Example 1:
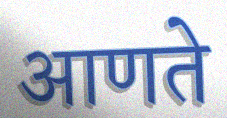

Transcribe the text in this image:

आणते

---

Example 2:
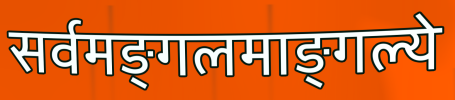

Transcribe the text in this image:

सर्वमङ्गलमाङ्गल्ये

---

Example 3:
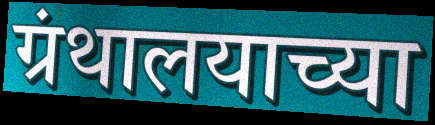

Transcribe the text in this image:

ग्रंथालयाच्या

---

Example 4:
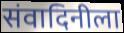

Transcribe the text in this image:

संवादिनीला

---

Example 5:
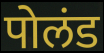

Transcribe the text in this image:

पोलंड